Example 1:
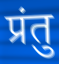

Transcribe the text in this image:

प्रंतु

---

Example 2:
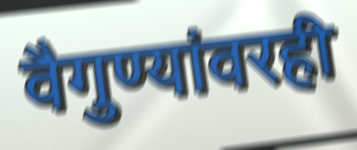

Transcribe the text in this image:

वैगुण्यांवरही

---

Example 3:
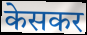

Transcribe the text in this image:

केसकर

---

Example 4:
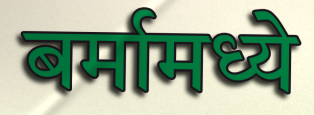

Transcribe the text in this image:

बर्मामध्ये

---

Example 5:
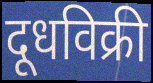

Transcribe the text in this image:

दूधविक्री